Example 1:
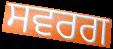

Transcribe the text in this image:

ਸਵਰਗ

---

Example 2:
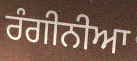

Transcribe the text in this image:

ਰੰਗੀਨੀਆ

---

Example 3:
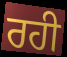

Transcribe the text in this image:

ਰਹੀ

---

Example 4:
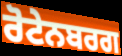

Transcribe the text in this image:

ਰੋਟੇਨਬਰਗ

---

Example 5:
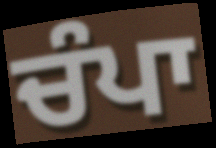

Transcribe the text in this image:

ਚੰਪਾ